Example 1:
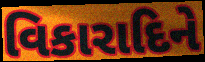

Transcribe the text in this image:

વિકારાદિને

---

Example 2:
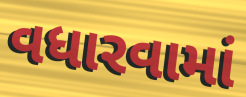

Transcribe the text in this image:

વધારવામાં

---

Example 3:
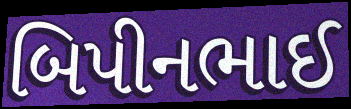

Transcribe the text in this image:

બિપીનભાઈ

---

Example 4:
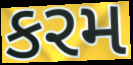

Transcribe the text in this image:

કરમ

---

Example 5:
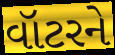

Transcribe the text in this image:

વૉટરને